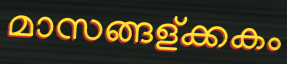
മാസങ്ങള്ക്കകം